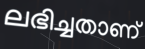
ലഭിച്ചതാണ്